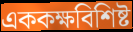
এককক্ষবিশিষ্ট